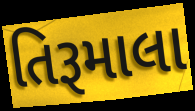
તિરૂમાલા